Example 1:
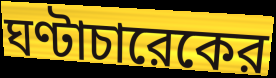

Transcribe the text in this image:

ঘণ্টাচারেকের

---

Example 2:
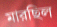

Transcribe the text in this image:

মারছিল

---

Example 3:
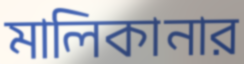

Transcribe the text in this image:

মালিকানার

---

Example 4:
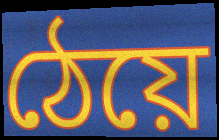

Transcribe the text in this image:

ঠেয়ে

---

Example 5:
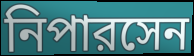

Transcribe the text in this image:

নিপারসেন